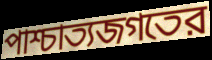
পাশ্চাত্যজগতের